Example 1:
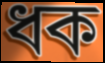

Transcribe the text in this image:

ধক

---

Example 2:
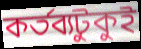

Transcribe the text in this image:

কর্তব্যটুকুই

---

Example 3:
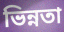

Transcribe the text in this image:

ভিন্নতা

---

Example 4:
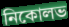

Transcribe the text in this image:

নিকোলভ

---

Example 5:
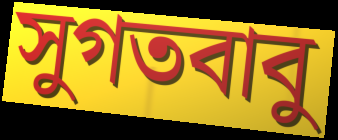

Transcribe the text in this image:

সুগতবাবু